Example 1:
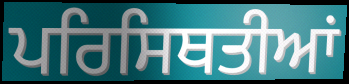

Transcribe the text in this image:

ਪਰਿਸਿਥਤੀਆਂ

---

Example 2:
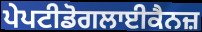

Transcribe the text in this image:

ਪੇਪਟੀਡੋਗਲਾਈਕੈਨਜ਼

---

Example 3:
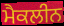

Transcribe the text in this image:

ਮੈਕਲੀਨ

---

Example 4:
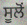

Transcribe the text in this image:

ਸੂਲੋਂ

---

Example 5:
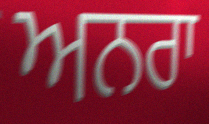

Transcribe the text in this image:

ਅਨਰਾ